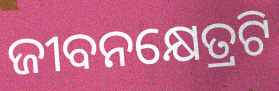
ଜୀବନକ୍ଷେତ୍ରଟି